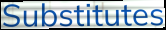
Substitutes